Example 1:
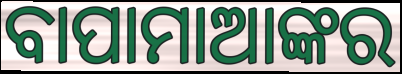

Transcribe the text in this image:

ବାପାମାଆଙ୍କର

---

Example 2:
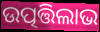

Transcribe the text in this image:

ଉତ୍ପତ୍ତିଲାଭ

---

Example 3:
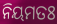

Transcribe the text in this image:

ନିୟମତଃ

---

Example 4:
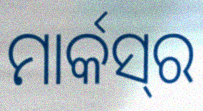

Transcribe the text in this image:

ମାର୍କସ୍‍ର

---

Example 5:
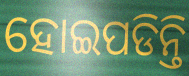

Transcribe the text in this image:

ହୋଇପଡିନ୍ତି